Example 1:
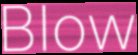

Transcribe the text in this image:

Blow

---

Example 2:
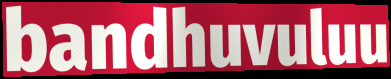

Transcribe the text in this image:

bandhuvuluu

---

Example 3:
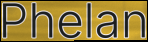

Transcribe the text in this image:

Phelan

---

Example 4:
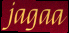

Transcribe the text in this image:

jagaa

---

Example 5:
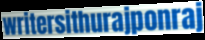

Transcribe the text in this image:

writersithurajponraj